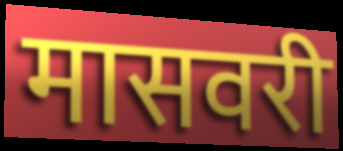
मासवरी